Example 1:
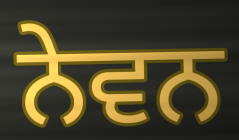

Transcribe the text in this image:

ਨੇਵਨ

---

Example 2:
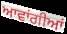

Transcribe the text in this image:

ਆਵਾਂਗੀਆਂ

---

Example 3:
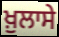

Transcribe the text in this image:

ਖ਼ੁਲਾਸੇ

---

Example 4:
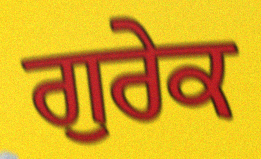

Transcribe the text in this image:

ਗੁਰੇਕ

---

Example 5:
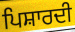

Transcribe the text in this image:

ਪਿਸ਼ਾਰਦੀ